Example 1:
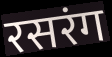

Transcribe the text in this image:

रसरंग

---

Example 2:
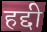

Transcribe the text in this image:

हद्दी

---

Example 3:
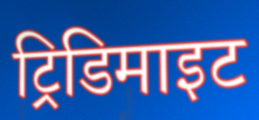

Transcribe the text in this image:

ट्रिडिमाइट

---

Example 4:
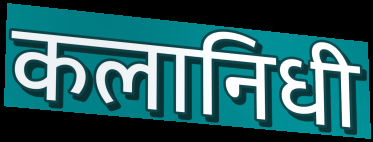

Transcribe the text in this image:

कलानिधी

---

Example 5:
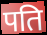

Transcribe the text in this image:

पति